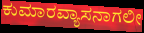
ಕುಮಾರವ್ಯಾಸನಾಗಲೀ